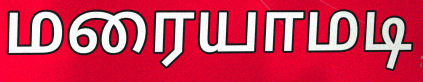
மரையாமடி